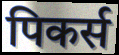
पिकर्स